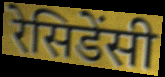
रेसिडेंसी